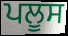
ਪਲੂਸ